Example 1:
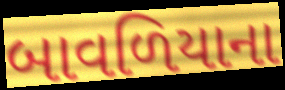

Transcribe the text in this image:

બાવળિયાના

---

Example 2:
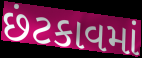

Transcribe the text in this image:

છંટકાવમાં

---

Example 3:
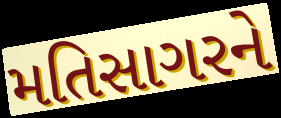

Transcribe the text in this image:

મતિસાગરને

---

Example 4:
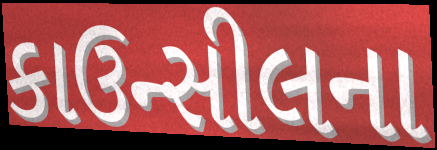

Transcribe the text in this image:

કાઉન્સીલના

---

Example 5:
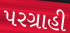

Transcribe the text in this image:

પરગ્રાહી